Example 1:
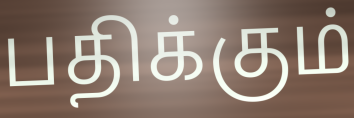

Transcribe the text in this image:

பதிக்கும்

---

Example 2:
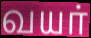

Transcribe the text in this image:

வயர்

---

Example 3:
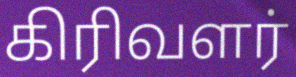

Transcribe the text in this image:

கிரிவளர்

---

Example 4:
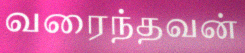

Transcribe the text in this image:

வரைந்தவன்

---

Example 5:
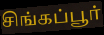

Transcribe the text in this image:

சிங்கப்பூர்